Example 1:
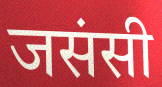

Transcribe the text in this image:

जसंसी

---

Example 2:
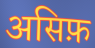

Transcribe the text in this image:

असिफ़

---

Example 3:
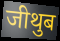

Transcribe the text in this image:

जीथुब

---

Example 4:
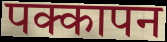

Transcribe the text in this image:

पक्कापन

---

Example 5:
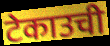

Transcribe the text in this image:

टेकाउची